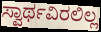
ಸ್ವಾರ್ಥವಿರಲಿಲ್ಲ